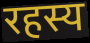
रहस्य